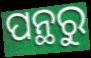
ପନ୍ଥରୁ